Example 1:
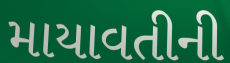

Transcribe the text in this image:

માયાવતીની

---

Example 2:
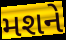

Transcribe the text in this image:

મશને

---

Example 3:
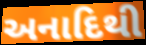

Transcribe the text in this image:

અનાદિથી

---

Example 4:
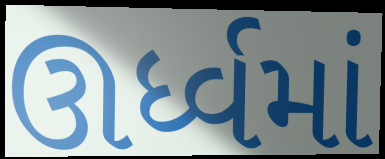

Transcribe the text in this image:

ઊર્ધ્વમાં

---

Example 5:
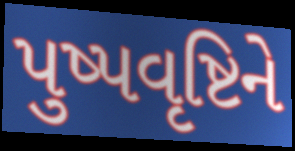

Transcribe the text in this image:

પુષ્પવૃષ્ટિને